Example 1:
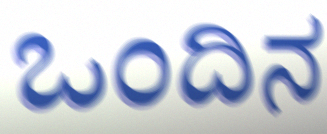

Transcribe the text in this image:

ಒಂದಿನ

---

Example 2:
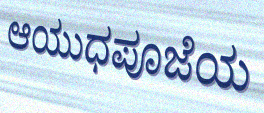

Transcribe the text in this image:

ಆಯುಧಪೂಜೆಯ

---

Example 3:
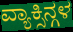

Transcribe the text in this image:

ವ್ಯಾಕ್ಸಿನ್ಗಳ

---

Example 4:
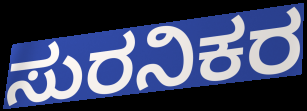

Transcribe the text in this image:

ಸುರನಿಕರ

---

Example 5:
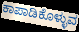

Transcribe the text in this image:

ಕಾಪಾಡಿಕೊಳ್ಳುವ